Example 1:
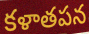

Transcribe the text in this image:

కళాతపన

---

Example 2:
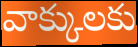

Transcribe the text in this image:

వాక్కులకు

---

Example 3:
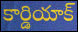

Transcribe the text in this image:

కార్డియాక్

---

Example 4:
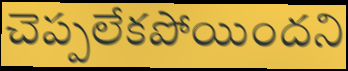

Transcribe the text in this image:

చెప్పలేకపోయిందని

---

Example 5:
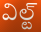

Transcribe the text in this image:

విల్ట్